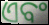
ଏବଂ